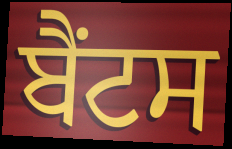
ਬੈਂਟਸ